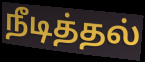
நீடித்தல்